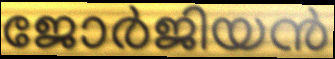
ജോർജിയൻ